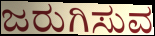
ಜರುಗಿಸುವ